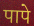
पापे